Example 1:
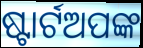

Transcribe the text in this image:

ଷ୍ଟାର୍ଟଅପଙ୍କ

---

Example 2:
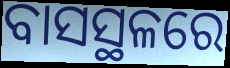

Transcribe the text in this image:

ବାସସ୍ଥଳରେ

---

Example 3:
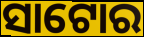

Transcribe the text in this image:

ସାଟୋର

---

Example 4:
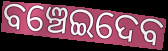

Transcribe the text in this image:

ବଞ୍ଚେଇଦେବ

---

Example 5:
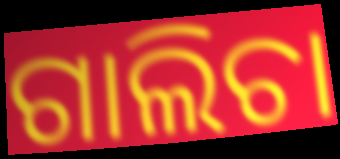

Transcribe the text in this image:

ଗାଲିଚା